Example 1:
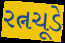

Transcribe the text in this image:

રત્નચૂડે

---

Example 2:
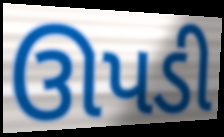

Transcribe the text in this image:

ઊપડી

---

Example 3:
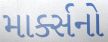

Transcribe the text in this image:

માર્ક્સનો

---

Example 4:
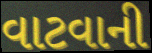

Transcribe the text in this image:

વાટવાની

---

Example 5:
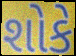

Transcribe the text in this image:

શોકે